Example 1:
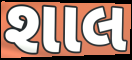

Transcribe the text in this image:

શાલ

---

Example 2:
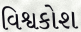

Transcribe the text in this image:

વિશ્વકોશ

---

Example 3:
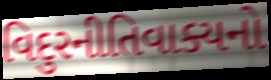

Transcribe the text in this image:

વિદુરનીતિવાક્યનો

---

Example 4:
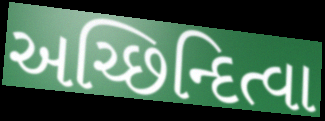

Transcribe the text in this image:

અચ્છિન્દિત્વા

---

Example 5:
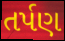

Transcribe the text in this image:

તર્પણ